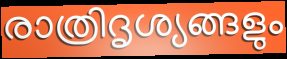
രാത്രിദൃശ്യങ്ങളും